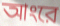
আংরে